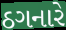
ઠગનારે